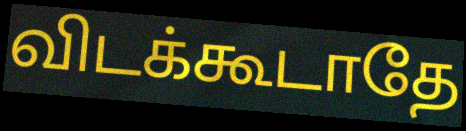
விடக்கூடாதே